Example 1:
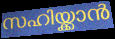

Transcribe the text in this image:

സഹിയ്ക്കാൻ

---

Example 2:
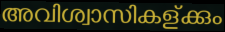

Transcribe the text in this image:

അവിശ്വാസികള്ക്കും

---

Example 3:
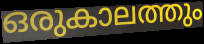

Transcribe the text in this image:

ഒരുകാലത്തും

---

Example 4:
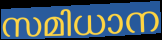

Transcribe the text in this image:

സമിധാന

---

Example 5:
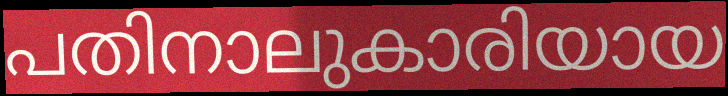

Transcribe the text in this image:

പതിനാലുകാരിയായ